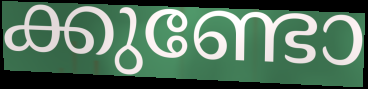
ക്കുണ്ടോ